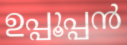
ഉപ്പൂപ്പൻ